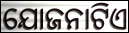
ଯୋଜନାଟିଏ